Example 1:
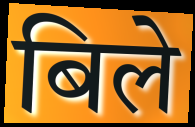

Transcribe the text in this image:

बिले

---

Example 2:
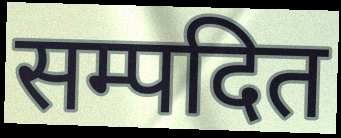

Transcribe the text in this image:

सम्पदित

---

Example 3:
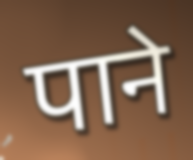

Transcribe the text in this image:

पाने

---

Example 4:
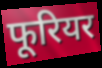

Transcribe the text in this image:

फूरियर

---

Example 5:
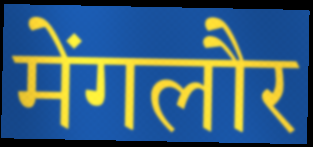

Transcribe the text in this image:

मेंगलौर